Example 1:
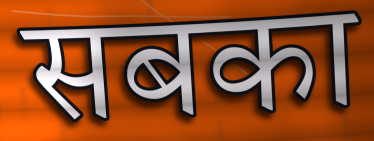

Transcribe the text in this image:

सबका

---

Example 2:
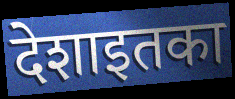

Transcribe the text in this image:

देशाइतका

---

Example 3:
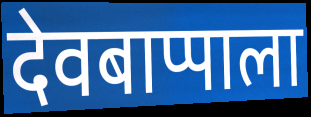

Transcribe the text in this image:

देवबाप्पाला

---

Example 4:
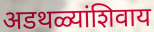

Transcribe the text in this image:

अडथळ्यांशिवाय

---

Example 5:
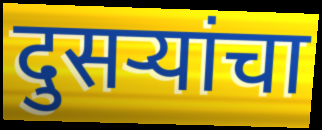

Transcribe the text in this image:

दुसऱ्यांचा